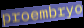
proembryo